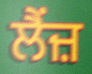
ਲੈਂਜ਼